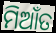
ମିଆଁତ